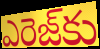
ఎరెజ్‌కు